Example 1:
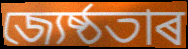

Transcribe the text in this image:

জ্যেষ্ঠতাৰ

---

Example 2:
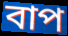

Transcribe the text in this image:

বাপ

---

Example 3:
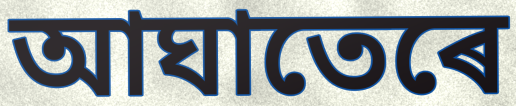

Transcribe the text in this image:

আঘাতেৰে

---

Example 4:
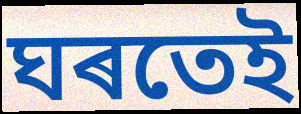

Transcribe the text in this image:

ঘৰতেই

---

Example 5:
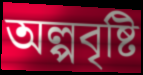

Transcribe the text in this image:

অল্পবৃষ্টি